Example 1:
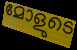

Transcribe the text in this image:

മോളുടെ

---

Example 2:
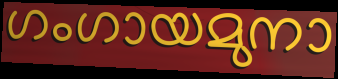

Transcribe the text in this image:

ഗംഗായമുനാ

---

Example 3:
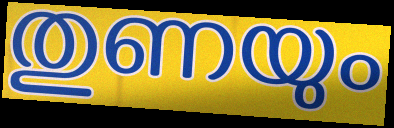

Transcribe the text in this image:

തുണയും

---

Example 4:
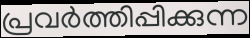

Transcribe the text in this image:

പ്രവർത്തിപ്പിക്കുന്ന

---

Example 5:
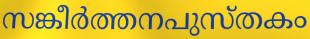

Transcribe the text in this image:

സങ്കീർത്തനപുസ്തകം